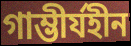
গাম্ভীর্যহীন